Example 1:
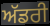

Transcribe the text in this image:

ਅੱਡਰੀ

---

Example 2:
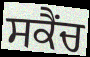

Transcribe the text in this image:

ਸਕੈਂਚ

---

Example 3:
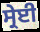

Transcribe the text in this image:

ਸ੍ਰੇਈ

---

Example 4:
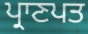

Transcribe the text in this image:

ਪ੍ਰਾਣਪਤ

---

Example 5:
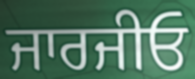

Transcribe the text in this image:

ਜਾਰਜੀਓ